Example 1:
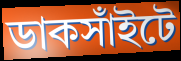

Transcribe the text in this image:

ডাকসাঁইটে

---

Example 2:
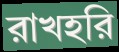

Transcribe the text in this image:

রাখহরি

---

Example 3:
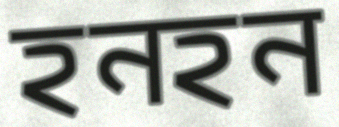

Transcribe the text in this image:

হনহন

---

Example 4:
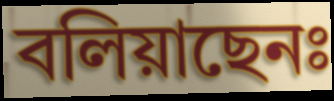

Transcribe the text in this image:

বলিয়াছেনঃ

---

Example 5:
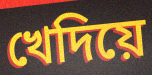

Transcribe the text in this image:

খেদিয়ে